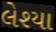
લેશ્યા